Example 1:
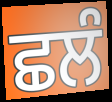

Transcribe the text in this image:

ਛਲੰ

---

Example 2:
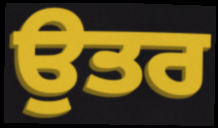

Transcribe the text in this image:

ਉਤਰ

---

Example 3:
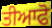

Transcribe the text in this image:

ਤੀਆਫੋ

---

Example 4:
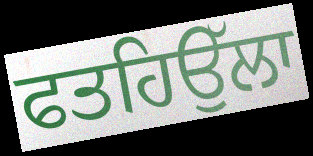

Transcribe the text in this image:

ਫਤਹਿਉੱਲਾ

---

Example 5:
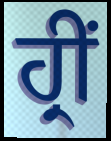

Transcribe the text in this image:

ਹ੍ਰੀਂ